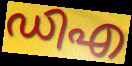
ഡിഎ